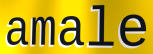
amale